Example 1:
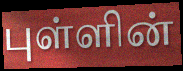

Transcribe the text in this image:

புள்ளின்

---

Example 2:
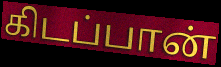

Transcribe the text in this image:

கிடப்பான்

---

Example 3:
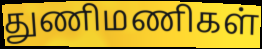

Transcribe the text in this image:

துணிமணிகள்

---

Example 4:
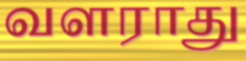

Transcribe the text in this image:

வளராது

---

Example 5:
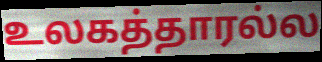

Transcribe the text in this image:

உலகத்தாரல்ல